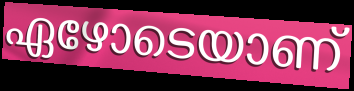
ഏഴോടെയാണ്